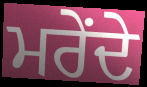
ਮਰੇਂਦੇ